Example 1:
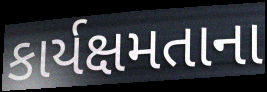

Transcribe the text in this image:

કાર્યક્ષમતાના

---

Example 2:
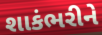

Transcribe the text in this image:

શાકંભરીને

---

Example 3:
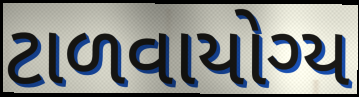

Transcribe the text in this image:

ટાળવાયોગ્ય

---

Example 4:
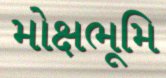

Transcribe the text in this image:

મોક્ષભૂમિ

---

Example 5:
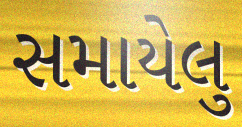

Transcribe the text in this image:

સમાયેલુ